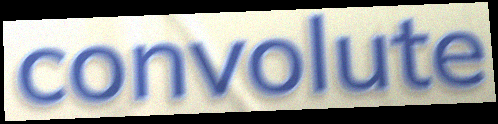
convolute